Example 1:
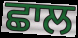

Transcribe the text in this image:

ਛਾਲ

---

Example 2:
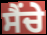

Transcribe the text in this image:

ਸੈਂਚੇ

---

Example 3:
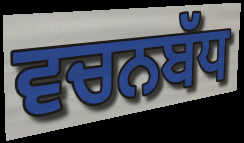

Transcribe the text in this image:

ਵਚਨਬੱਧ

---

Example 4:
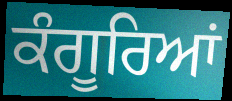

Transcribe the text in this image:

ਕੰਗੂਰਿਆਂ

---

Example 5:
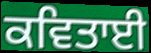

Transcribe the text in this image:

ਕਵਿਤਾਈ